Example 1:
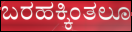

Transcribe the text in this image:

ಬರಹಕ್ಕಿಂತಲೂ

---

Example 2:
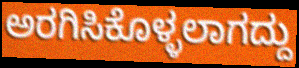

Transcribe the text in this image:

ಅರಗಿಸಿಕೊಳ್ಳಲಾಗದ್ದು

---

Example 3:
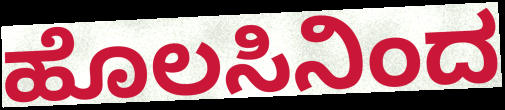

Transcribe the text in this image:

ಹೊಲಸಿನಿಂದ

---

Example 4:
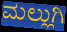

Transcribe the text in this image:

ಮಲ್ಲುಗಿ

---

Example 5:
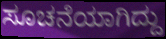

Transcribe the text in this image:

ಸೂಚನೆಯಾಗಿದ್ದು